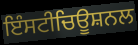
ਇੰਸਟੀਚਿਊਸ਼ਨਲ